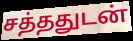
சத்ததுடன்